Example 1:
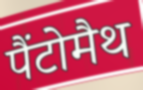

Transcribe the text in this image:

पैंटोमैथ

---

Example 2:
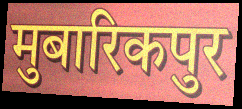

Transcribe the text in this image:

मुबारिकपुर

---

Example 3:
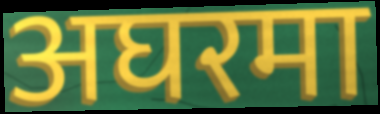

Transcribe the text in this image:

अघरमा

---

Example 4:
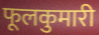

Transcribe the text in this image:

फूलकुमारी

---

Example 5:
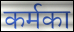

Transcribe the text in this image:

कर्मका